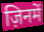
ज़िनमें